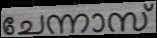
ചേന്നാസ്